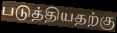
படுத்தியதற்கு